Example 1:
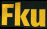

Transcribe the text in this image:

Fku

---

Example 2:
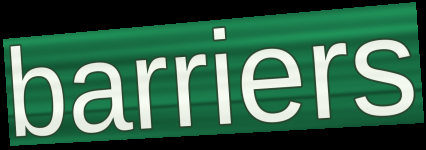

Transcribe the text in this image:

barriers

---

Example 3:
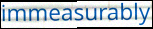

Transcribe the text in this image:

immeasurably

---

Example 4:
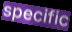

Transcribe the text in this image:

specific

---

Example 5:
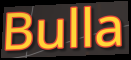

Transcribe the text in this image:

Bulla